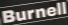
Burnell